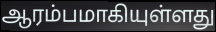
ஆரம்பமாகியுள்ளது